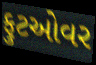
ફુટઓવર